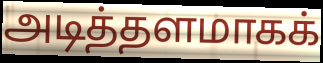
அடித்தளமாகக்